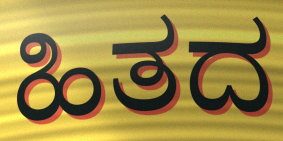
ಹಿತದ